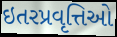
ઇતરપ્રવૃત્તિઓ